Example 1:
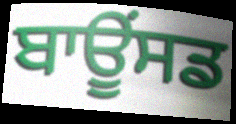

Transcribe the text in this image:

ਬਾਊਂਸਡ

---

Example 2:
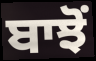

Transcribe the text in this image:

ਬਾਝੋਂ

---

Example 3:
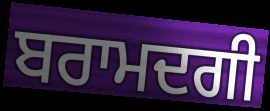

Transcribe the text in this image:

ਬਰਾਮਦਗੀ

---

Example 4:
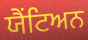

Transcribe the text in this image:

ਯੈਂਟਿਅਨ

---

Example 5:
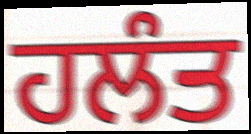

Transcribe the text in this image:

ਹਲੰਤ